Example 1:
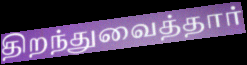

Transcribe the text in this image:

திறந்துவைத்தார்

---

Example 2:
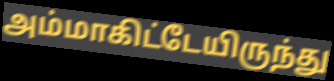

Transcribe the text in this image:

அம்மாகிட்டேயிருந்து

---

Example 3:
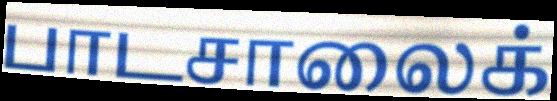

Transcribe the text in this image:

பாடசாலைக்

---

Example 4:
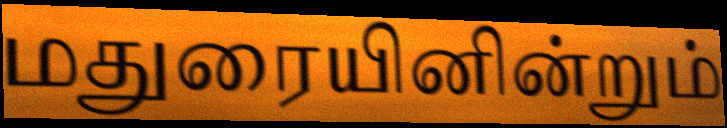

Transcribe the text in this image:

மதுரையினின்றும்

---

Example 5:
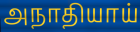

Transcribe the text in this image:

அநாதியாய்